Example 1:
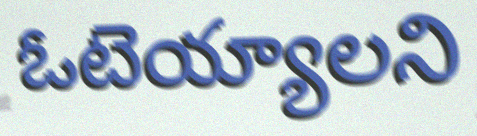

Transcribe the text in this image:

ఓటెయ్యాలని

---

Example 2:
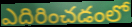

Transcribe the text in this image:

ఎదిరించడంలో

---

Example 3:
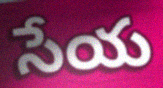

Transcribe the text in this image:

సేయ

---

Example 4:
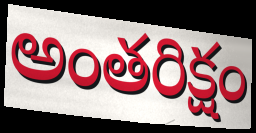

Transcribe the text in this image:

అంతరిక్షం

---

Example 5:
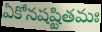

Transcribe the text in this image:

ఏకోనషష్టితమః